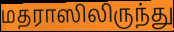
மதராஸிலிருந்து